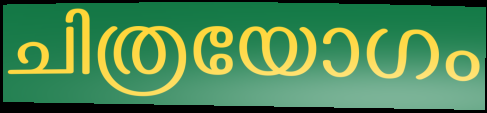
ചിത്രയോഗം